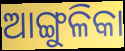
ଆଙ୍ଗୁଳିକା